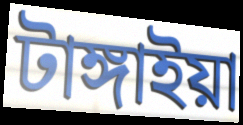
টাঙ্গাইয়া